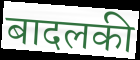
बादलकी